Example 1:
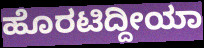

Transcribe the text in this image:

ಹೊರಟಿದ್ದೀಯಾ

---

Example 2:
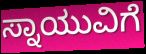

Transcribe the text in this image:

ಸ್ನಾಯುವಿಗೆ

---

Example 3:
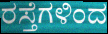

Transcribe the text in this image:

ರಸ್ತೆಗಳಿಂದ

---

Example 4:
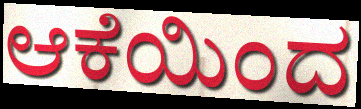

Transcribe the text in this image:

ಆಕೆಯಿಂದ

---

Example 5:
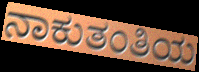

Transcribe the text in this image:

ನಾಕುತಂತಿಯ